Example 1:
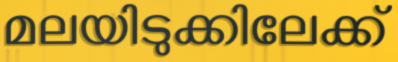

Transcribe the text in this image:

മലയിടുക്കിലേക്ക്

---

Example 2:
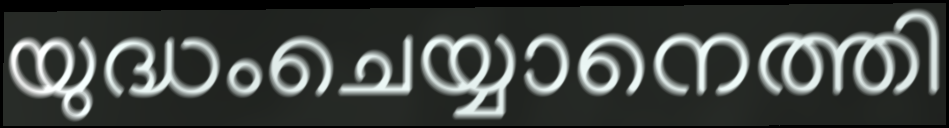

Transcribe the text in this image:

യുദ്ധംചെയ്യാനെത്തി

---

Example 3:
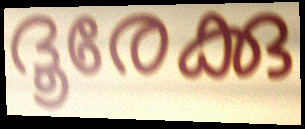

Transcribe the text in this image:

ദൂരേക്കു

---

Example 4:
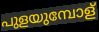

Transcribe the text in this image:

പുളയുമ്പോള്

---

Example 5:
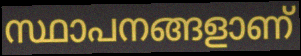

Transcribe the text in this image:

സ്ഥാപനങ്ങളാണ്